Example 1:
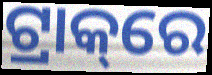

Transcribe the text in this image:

ଟ୍ରାକ୍‌ରେ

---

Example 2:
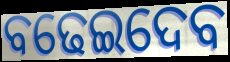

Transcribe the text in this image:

ବଢେଇଦେବ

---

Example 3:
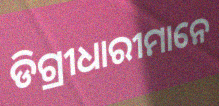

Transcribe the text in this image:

ଡିଗ୍ରୀଧାରୀମାନେ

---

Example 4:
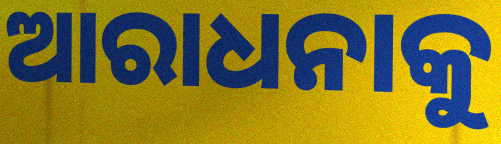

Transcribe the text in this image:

ଆରାଧନାକୁ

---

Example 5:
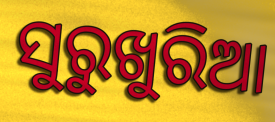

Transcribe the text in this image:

ସୁରୁଖୁରିଆ